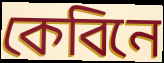
কেবিনে